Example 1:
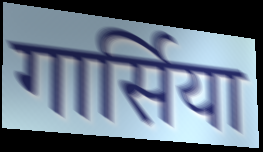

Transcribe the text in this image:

गार्सिया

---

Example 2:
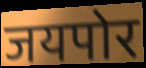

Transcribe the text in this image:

जयपोर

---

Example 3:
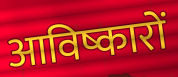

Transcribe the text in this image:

आविष्‍कारों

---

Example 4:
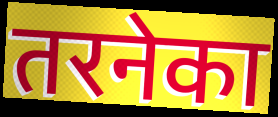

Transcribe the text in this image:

तरनेका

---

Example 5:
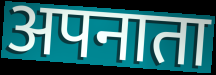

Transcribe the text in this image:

अपनाता